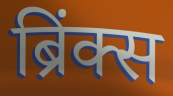
ब्रिंक्स